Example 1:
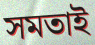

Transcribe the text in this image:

সমতাই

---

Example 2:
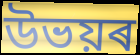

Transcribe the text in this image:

উভয়ৰ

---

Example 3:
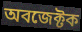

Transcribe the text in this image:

অবজেক্টক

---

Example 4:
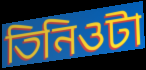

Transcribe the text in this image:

তিনিওটা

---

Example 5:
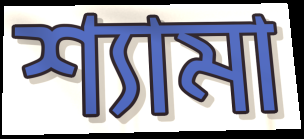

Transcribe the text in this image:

শ্যামা